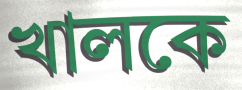
খালকে